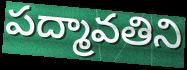
పద్మావతిని